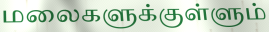
மலைகளுக்குள்ளும்